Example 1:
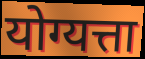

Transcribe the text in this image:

योग्यत्ता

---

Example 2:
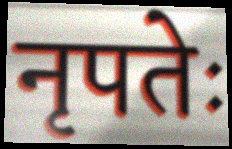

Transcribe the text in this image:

नृपतेः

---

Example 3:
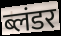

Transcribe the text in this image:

ब्लंडर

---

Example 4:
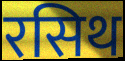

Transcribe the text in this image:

रसिथ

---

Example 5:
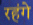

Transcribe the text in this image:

रहंगे